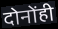
दोनोंही